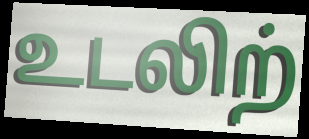
உடலிற்